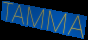
TAMMA